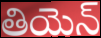
తియెన్